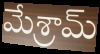
మేశ్రామ్